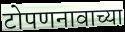
टोपणनावाच्या